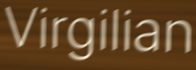
Virgilian